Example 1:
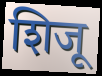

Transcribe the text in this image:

शिजू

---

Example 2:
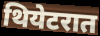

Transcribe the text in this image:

थियेटरात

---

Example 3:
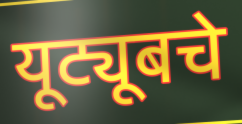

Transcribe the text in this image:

यूट्यूबचे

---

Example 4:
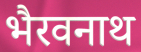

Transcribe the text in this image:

भैरवनाथ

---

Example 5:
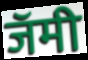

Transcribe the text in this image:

जॅमी